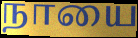
நாயை